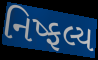
નિષ્ફલ્ય